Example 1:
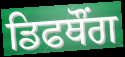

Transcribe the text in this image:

ਡਿਫਥੌਂਗ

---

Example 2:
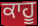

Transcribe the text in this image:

ਕਾਹੂ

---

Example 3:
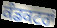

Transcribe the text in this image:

ਕੰਡਕਟਰਾਂ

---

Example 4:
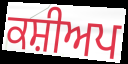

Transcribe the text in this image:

ਕਸ਼ੀਅਪ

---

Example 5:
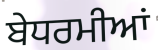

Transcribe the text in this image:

ਬੇਧਰਮੀਆਂ